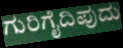
ಗುರಿಗೈದಿಪುದು